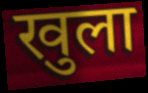
खुला